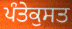
ਪੰਤੇਕੁਸਤ